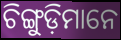
ଚିଙ୍ଗୁଡ଼ିମାନେ